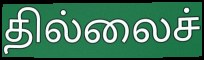
தில்லைச்